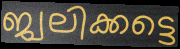
ജ്വലിക്കട്ടെ